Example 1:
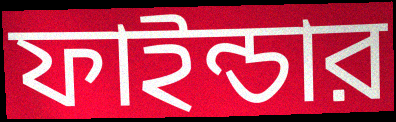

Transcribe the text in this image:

ফাইন্ডার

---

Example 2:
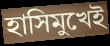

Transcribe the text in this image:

হাসিমুখেই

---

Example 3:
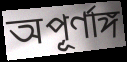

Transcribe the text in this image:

অপূর্ণাঙ্গ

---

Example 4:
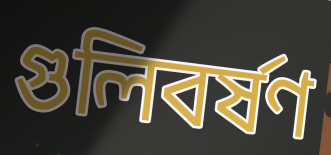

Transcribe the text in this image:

গুলিবর্ষণ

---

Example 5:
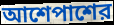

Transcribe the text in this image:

আশেপাশের